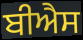
ਬੀਐਸ